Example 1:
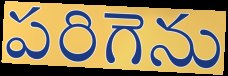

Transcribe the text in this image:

పరిగెను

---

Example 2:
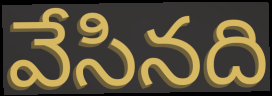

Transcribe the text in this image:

వేసినది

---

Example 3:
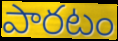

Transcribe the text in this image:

పారటం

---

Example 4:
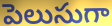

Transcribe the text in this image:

పెలుసుగా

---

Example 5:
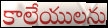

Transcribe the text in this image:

కాలేయులను